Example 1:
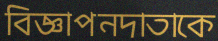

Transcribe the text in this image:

বিজ্ঞাপনদাতাকে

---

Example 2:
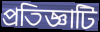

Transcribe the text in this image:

প্রতিজ্ঞাটি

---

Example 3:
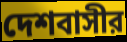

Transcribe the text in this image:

দেশবাসীর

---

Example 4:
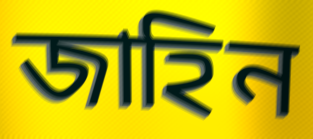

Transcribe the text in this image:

জাহিন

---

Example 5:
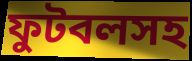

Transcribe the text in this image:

ফুটবলসহ